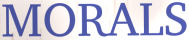
MORALS